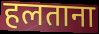
हलताना